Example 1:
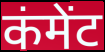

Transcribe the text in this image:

कंमेंट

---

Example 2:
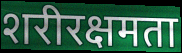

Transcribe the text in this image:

शरीरक्षमता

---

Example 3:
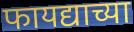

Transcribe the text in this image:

फायद्याच्या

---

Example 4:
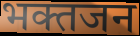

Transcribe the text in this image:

भक्तजन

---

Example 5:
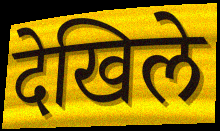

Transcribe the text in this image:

देखिले